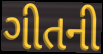
ગીતની